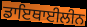
ਡਾਇਥਾਈਲੀਨ